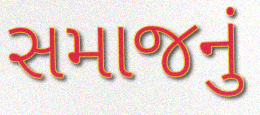
સમાજનું